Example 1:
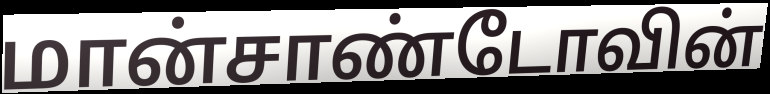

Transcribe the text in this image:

மான்சாண்டோவின்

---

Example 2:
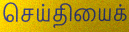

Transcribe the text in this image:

செய்தியைக்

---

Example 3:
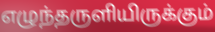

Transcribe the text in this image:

எழுந்தருளியிருக்கும்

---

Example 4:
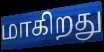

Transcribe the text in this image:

மாகிறது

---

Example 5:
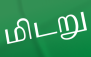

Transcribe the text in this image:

மிடறு